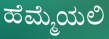
ಹೆಮ್ಮೆಯಲಿ